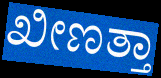
ಖೀಣತ್ತಾ